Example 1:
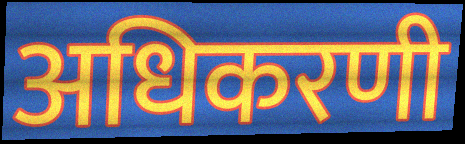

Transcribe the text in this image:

अधिकरणी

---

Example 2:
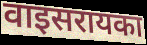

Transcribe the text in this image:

वाइसरायका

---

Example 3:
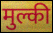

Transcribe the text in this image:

मुल्की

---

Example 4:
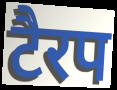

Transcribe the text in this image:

टैरप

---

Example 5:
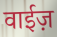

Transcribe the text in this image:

वाईज़